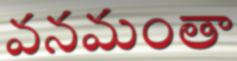
వనమంతా